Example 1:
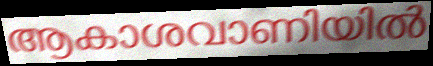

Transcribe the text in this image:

ആകാശവാണിയിൽ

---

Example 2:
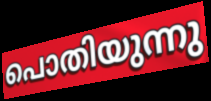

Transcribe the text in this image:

പൊതിയുന്നു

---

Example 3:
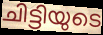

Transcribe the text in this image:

ചിട്ടിയുടെ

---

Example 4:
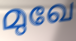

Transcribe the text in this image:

മുഖേ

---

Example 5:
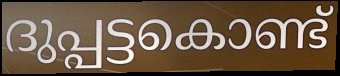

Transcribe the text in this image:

ദുപ്പട്ടകൊണ്ട്